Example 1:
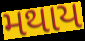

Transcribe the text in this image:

મથાય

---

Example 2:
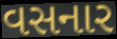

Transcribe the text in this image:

વસનાર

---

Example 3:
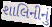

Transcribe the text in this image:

શાલિનીનું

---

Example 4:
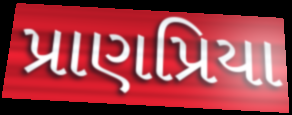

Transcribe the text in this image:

પ્રાણપ્રિયા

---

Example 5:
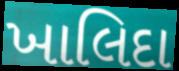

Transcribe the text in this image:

ખાલિદા